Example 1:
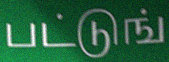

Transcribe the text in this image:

பட்டுங்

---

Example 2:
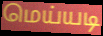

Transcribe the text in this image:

மெய்யடி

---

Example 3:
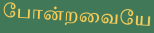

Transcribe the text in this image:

போன்றவையே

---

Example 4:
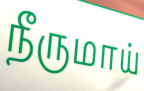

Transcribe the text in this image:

நீருமாய்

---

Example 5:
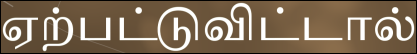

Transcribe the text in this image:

ஏற்பட்டுவிட்டால்